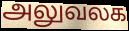
அலுவலக